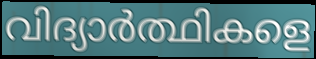
വിദ്യാർത്ഥികളെ